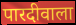
पारदीवाला